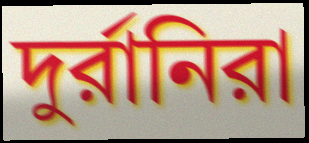
দুর্রানিরা